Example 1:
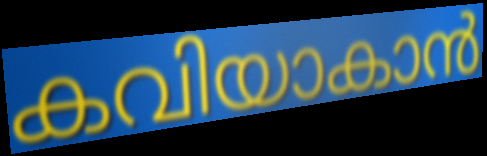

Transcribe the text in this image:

കവിയാകാൻ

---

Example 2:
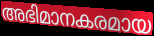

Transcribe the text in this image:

അഭിമാനകരമായ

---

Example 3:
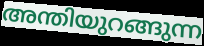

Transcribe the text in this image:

അന്തിയുറങ്ങുന്ന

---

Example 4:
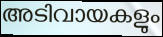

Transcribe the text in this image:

അടിവായകളും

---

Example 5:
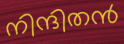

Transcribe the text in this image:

നിന്ദിതൻ